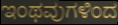
ಇಂಥವುಗಳಿಂದ